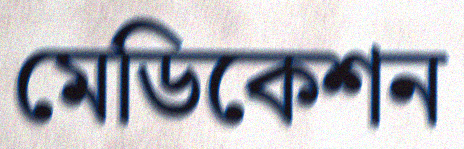
মেডিকেশন